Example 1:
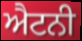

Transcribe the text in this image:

ਐਟਨੀ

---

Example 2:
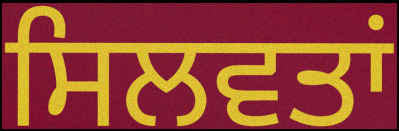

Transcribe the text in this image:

ਸਿਲਵਤਾਂ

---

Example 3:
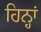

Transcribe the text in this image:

ਹਿਨ੍ਹਾਂ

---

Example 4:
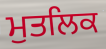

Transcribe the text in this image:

ਮੁਤਲਿਕ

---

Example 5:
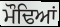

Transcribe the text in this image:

ਮੌਢਿਆਂ